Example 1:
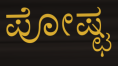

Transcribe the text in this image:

ಪೋಷ್ಟ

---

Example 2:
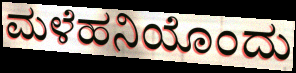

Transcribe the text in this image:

ಮಳೆಹನಿಯೊಂದು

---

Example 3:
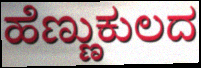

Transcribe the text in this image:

ಹೆಣ್ಣುಕುಲದ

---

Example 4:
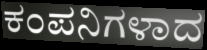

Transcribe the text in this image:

ಕಂಪನಿಗಳಾದ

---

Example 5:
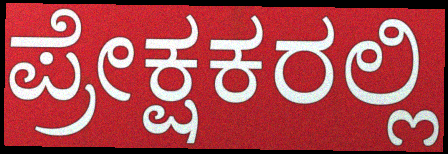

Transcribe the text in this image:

ಪ್ರೇಕ್ಷಕರಲ್ಲಿ